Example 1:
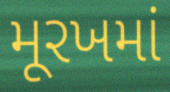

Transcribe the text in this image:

મૂરખમાં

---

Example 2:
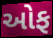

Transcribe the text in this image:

ઓફ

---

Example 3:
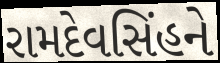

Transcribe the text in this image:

રામદેવસિંહને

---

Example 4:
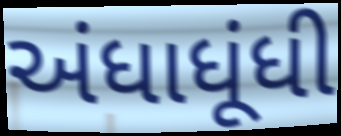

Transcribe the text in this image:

અંધાધૂંધી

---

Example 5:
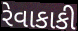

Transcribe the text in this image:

રેવાકાકી